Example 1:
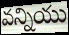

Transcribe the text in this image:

వన్నియు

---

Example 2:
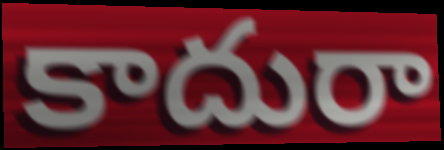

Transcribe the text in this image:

కాదురా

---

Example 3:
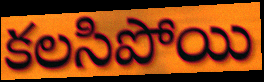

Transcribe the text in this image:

కలసిపోయి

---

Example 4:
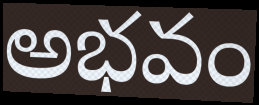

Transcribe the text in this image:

అభవం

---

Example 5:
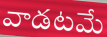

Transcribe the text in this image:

వాడటమే